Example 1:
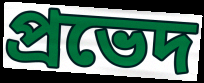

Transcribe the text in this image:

প্ৰভেদ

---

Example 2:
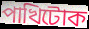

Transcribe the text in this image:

পাখিটোক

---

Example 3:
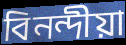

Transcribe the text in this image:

বিনন্দীয়া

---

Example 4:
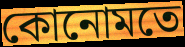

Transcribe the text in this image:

কোনোমতে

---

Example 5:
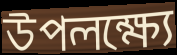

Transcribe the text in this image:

উপলক্ষ্যে